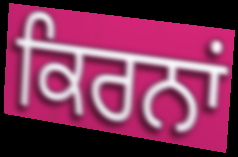
ਕਿਰਨਾਂ